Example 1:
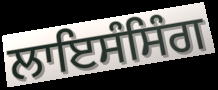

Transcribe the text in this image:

ਲਾਇਸੰਸਿੰਗ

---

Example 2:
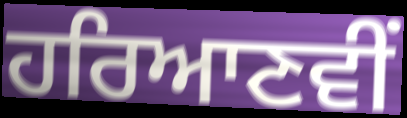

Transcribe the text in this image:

ਹਰਿਆਣਵੀਂ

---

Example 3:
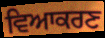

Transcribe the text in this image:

ਵਿਆਕਰਣ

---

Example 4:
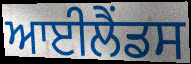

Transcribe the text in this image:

ਆਈਲੈਂਡਸ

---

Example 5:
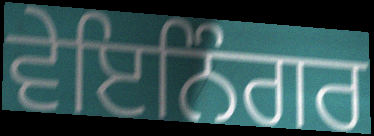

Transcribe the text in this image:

ਵੇਇਨਿੰਗਰ